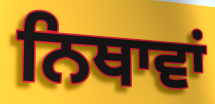
ਨਿਥਾਵਾਂ